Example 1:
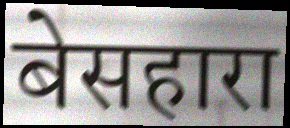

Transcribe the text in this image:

बेसहारा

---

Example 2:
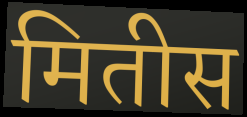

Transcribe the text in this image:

मितीस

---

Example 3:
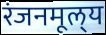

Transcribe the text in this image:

रंजनमूल्य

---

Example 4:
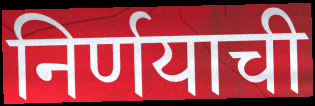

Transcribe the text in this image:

निर्णयाची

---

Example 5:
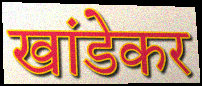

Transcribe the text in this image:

खांडेकर